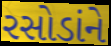
રસોડાંને